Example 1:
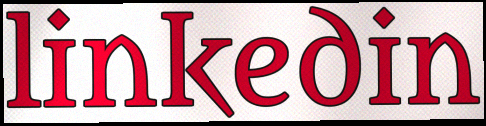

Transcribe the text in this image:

linkedin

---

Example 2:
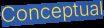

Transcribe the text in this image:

Conceptual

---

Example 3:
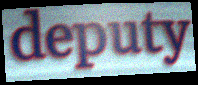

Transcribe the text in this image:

deputy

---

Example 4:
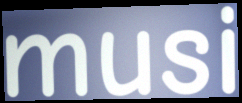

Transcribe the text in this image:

musi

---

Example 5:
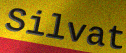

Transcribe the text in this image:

Silvat